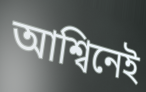
আশ্বিনেই